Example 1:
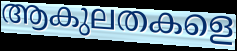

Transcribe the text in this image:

ആകുലതകളെ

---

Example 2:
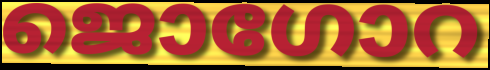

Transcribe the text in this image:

ജൊഗോറ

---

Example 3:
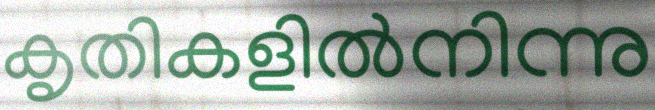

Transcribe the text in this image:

കൃതികളിൽനിന്നു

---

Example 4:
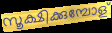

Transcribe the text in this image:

സൂക്ഷിക്കുമ്പോള്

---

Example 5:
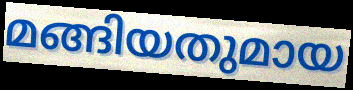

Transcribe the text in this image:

മങ്ങിയതുമായ